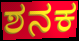
ಶನಕ